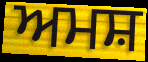
ਅਮਸ਼